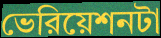
ভেরিয়েশনটা